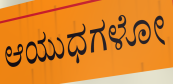
ಆಯುಧಗಳೋ